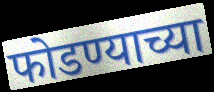
फोडण्याच्या